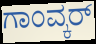
ಗಾಂವ್ಕರ್